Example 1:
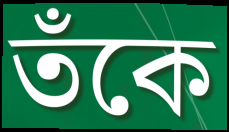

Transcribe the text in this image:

তঁকে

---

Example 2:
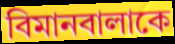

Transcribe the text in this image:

বিমানবালাকে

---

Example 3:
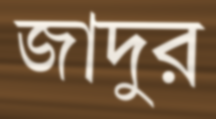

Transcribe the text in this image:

জাদুর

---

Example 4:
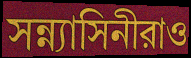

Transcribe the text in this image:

সন্ন্যাসিনীরাও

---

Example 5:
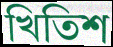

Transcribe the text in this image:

খিতিশ